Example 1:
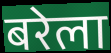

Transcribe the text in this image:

बरेला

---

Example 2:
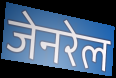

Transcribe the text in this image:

जेनरेल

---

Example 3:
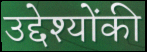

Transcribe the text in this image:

उद्देश्योंकी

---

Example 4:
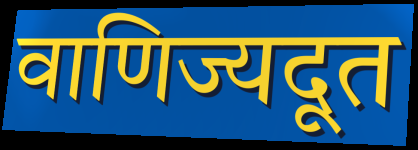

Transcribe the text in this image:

वाणिज्यदूत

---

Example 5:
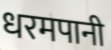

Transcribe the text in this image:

धरमपानी